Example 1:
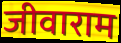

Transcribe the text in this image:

जीवाराम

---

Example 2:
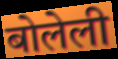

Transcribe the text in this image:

बोलेली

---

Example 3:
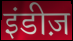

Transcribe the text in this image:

इंडीज़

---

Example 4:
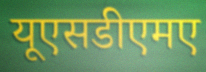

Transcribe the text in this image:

यूएसडीएमए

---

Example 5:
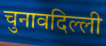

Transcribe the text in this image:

चुनावदिल्ली